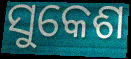
ସୁକେଶ